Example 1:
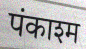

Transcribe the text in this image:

पंकाश्म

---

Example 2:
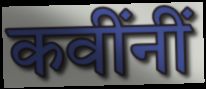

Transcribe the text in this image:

कवींनीं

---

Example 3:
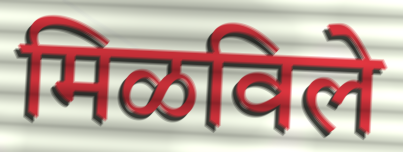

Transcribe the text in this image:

मिळविले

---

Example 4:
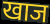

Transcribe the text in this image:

खाज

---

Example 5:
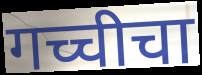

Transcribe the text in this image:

गच्चीचा